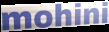
mohini